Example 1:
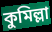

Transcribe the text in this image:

কুমিল্লা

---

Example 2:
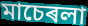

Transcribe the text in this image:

মাচেৰলা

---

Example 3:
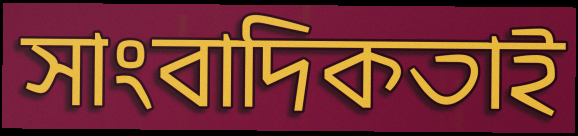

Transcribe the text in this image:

সাংবাদিকতাই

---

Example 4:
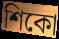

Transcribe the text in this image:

শিকো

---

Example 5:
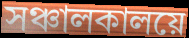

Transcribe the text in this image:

সঞ্চালকালয়ে